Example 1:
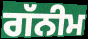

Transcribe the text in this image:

ਗੱਨੀਮ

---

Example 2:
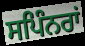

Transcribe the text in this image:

ਸਪਿੰਨਰਾਂ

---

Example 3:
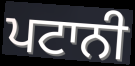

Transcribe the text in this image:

ਪਟਾਨੀ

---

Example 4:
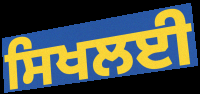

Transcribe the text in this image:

ਸਿਖਲਈ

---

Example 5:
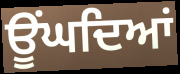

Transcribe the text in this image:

ਊਂਘਦਿਆਂ